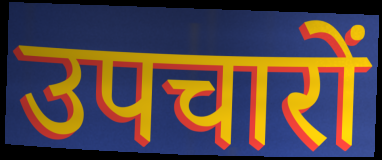
उपचारों